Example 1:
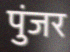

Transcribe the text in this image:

पुंजर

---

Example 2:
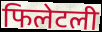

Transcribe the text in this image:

फिलेटली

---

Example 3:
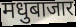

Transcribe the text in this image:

मधुबाजार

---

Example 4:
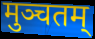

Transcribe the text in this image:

मुञ्चतम्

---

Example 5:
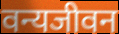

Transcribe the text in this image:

वन्यजीवन